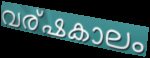
വര്ഷകാലം